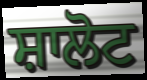
ਸ਼ਾਲੋਟ